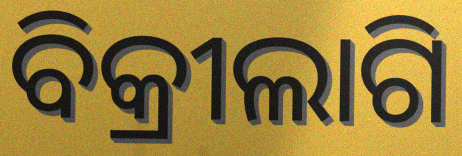
ବିକ୍ରୀଲାଗି